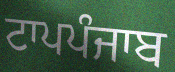
ਟਾਪਪੰਜਾਬ